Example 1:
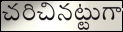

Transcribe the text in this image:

చరిచినట్టుగా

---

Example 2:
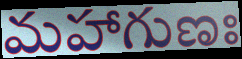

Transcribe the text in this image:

మహాగుణః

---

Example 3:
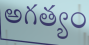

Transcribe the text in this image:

అగత్యం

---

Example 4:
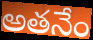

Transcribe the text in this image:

అతనేం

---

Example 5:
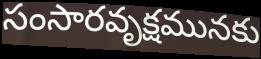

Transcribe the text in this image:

సంసారవృక్షమునకు